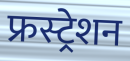
फ्रस्‍ट्रेशन